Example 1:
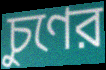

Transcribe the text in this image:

চুণের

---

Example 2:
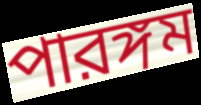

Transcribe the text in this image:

পারঙ্গম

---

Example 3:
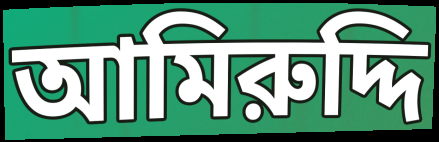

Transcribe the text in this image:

আমিরুদ্দি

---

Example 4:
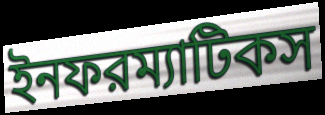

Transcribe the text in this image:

ইনফরম্যাটিকস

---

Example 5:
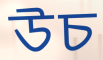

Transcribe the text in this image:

উচ